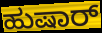
ಹುಷಾರ್